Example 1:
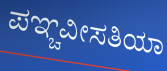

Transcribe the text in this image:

ಪಞ್ಚವೀಸತಿಯಾ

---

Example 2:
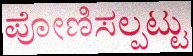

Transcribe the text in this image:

ಪೋಣಿಸಲ್ಪಟ್ಟು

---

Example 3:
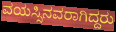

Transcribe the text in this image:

ವಯಸ್ಸಿನವರಾಗಿದ್ದರು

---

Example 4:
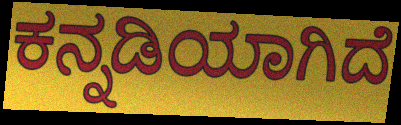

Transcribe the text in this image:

ಕನ್ನಡಿಯಾಗಿದೆ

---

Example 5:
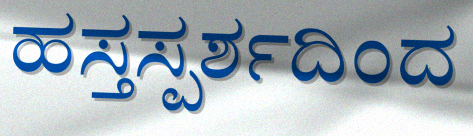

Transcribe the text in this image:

ಹಸ್ತಸ್ಪರ್ಶದಿಂದ